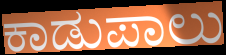
ಕಾಡುಪಾಲು